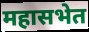
महासभेत